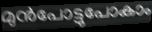
മുൻപോട്ടുപോകാം